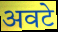
अवटे